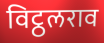
विट्ठलराव